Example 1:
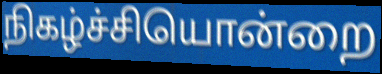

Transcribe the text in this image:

நிகழ்ச்சியொன்றை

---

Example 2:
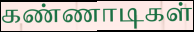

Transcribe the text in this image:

கண்ணாடிகள்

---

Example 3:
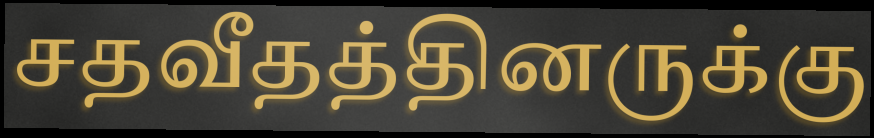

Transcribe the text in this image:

சதவீதத்தினருக்கு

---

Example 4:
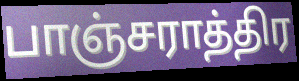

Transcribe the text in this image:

பாஞ்சராத்திர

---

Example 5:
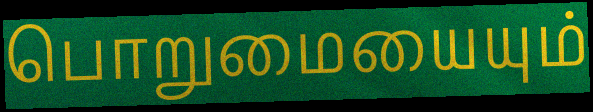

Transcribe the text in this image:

பொறுமையையும்